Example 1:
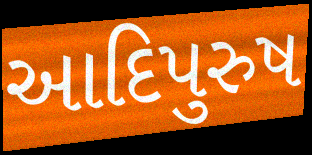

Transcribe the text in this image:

આદિપુરુષ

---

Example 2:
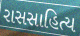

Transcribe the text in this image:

રાસસાહિત્ય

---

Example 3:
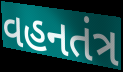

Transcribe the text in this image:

વહનતંત્ર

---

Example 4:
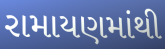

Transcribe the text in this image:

રામાયણમાંથી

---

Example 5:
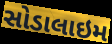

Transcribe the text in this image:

સોડાલાઇમ